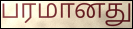
பரமானது